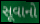
સૂવાનો